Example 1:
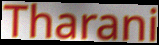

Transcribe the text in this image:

Tharani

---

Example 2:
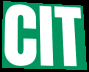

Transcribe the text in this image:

CIT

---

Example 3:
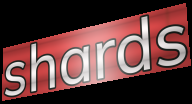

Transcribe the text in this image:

shards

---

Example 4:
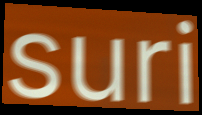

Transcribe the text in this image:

suri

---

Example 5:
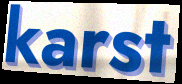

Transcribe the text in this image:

karst